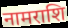
नामराशि